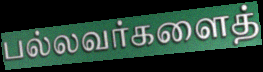
பல்லவர்களைத்